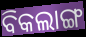
ବିକଲାଙ୍ଗ